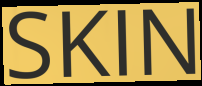
SKIN